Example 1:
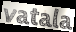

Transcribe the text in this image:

vatala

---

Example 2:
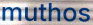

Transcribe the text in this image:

muthos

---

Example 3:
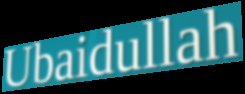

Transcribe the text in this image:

Ubaidullah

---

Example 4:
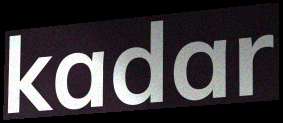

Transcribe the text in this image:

kadar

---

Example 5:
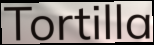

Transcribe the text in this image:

Tortilla